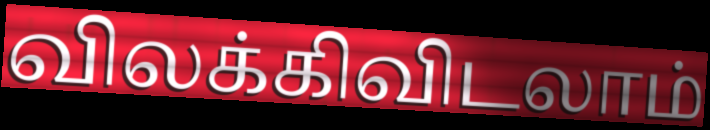
விலக்கிவிடலாம்